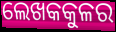
ଲେଖକକୁଳର